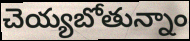
చెయ్యబోతున్నాం